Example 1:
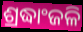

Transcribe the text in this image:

ଶ୍ରଦ୍ଧାଂଜଳି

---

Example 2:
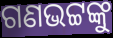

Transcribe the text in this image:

ଗଣଭଟ୍ଟଙ୍କୁ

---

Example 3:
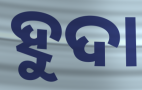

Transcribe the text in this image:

ହୁଦା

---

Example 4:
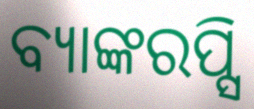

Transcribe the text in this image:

ବ୍ୟାଙ୍କରପ୍ସି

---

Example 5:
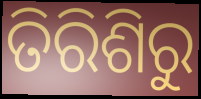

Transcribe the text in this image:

ତିରିଶିରୁ